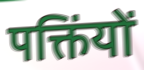
पक्तिंयों